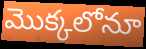
మొక్కలోనూ